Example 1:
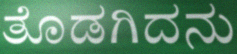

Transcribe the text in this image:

ತೊಡಗಿದನು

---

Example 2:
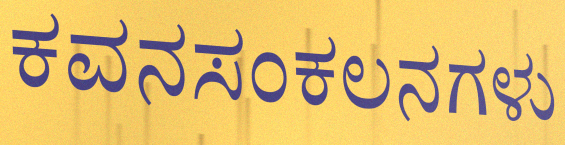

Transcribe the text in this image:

ಕವನಸಂಕಲನಗಳು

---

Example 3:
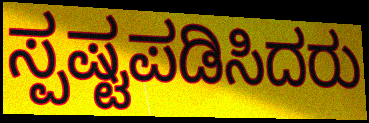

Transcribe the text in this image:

ಸ್ಪಷ್ಟಪಡಿಸಿದರು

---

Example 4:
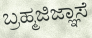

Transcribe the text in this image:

ಬ್ರಹ್ಮಜಿಜ್ಞಾಸೆ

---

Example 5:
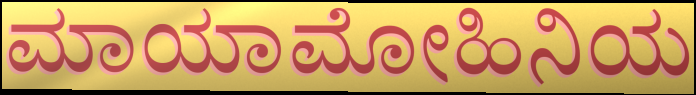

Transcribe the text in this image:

ಮಾಯಾಮೋಹಿನಿಯ